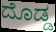
ದೊಡ್ಡ